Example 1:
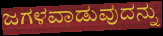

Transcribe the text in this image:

ಜಗಳವಾಡುವುದನ್ನು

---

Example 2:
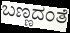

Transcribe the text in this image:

ಬಣ್ಣದಂತೆ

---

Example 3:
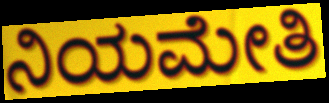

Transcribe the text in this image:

ನಿಯಮೇತಿ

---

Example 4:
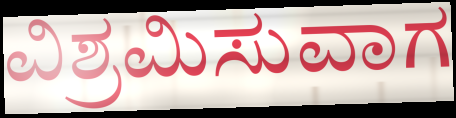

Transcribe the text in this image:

ವಿಶ್ರಮಿಸುವಾಗ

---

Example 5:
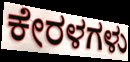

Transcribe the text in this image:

ಕೇರಳಗಳು